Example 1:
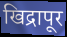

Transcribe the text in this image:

खिद्रापूर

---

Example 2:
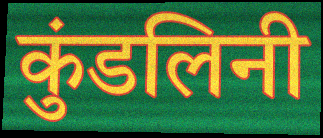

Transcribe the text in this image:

कुंडलिनी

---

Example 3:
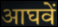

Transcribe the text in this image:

आघवें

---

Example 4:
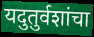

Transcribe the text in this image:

यदुतुर्वशांचा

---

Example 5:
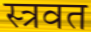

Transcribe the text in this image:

स्त्रवत